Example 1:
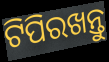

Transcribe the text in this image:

ଟିପିରଖନ୍ତୁ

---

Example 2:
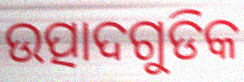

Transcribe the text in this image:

ଉତ୍ପାଦଗୁଡିକ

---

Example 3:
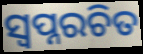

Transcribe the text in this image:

ସ୍ୱପ୍ନରଚିତ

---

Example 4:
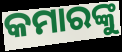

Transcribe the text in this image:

କମାରଙ୍କୁ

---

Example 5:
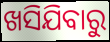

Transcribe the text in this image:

ଖସିଯିବାରୁ